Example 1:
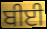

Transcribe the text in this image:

ਬੀਈ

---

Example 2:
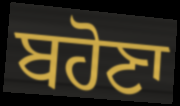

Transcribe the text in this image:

ਬਹੋਣਾ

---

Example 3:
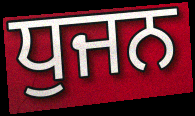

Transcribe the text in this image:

ਧੁਜਨ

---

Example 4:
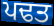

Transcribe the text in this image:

ਪਢਤ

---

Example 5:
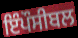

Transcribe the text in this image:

ਇੰਪੌਸੀਬਲ